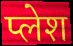
प्लेश